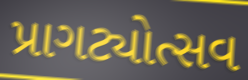
પ્રાગટ્યોત્સવ